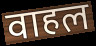
वाहल